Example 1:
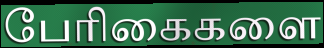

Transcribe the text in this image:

பேரிகைகளை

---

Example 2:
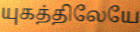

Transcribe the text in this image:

யுகத்திலேயே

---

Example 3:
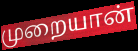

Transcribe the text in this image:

முறையான்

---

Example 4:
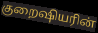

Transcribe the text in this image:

குறைஷியரின்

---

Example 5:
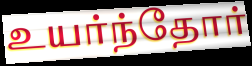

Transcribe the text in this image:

உயர்ந்தோர்